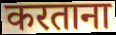
करताना